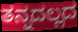
ತನ್ನದಲ್ಲದ